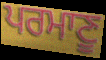
ਪਰਮਾਣੂ